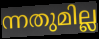
ന്നതുമില്ല